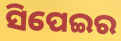
ସିପେଇର